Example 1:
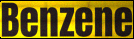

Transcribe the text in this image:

Benzene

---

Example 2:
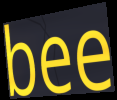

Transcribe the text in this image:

bee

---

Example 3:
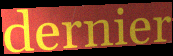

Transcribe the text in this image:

dernier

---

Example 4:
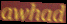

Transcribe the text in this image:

awhad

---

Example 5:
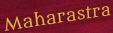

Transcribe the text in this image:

Maharastra